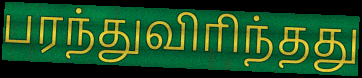
பரந்துவிரிந்தது